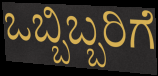
ಒಬ್ಬಿಬ್ಬರಿಗೆ